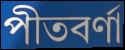
পীতবৰ্ণা